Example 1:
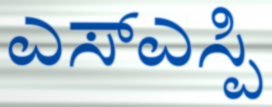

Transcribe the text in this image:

ಎಸ್ಎಸ್ಪಿ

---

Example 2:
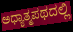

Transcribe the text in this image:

ಅಧ್ಯಾತ್ಮಪಥದಲ್ಲಿ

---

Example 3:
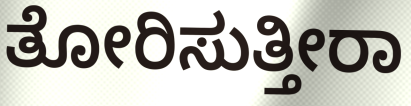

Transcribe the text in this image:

ತೋರಿಸುತ್ತೀರಾ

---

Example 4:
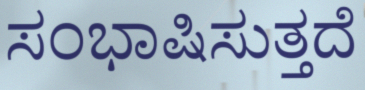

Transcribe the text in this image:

ಸಂಭಾಷಿಸುತ್ತದೆ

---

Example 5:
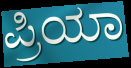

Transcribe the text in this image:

ಪ್ರಿಯಾ